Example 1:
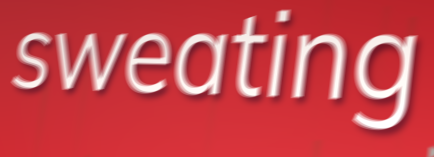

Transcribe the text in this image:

sweating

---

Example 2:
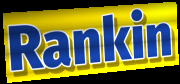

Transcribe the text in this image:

Rankin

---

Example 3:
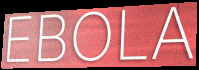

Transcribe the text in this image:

EBOLA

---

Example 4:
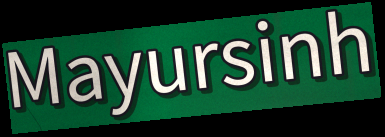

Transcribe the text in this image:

Mayursinh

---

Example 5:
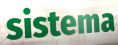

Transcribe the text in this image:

sistema